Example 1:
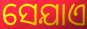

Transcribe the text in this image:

ସେଯାଏ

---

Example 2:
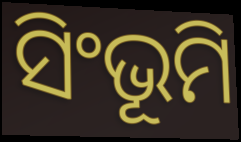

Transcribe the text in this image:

ସିଂଭୂମି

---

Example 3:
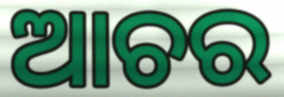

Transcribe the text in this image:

ଆଚର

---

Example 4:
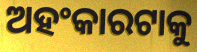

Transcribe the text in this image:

ଅହଂକାରଟାକୁ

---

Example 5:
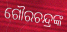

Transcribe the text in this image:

ଗୌରଚନ୍ଦ୍ରଙ୍କ